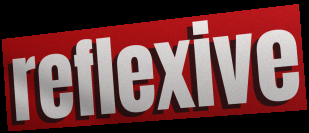
reflexive